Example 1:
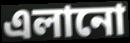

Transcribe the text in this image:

এলানো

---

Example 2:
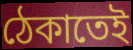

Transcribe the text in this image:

ঠেকাতেই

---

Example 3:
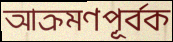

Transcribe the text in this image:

আক্রমণপূর্বক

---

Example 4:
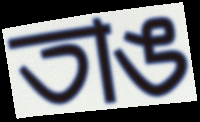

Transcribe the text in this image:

তাঙ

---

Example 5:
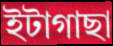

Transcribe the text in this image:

ইটাগাছা